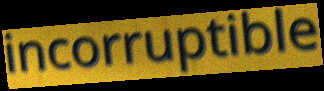
incorruptible